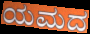
ಯಮದ